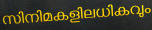
സിനിമകളിലധികവും